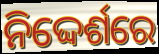
ନିଦ୍ଦେର୍ଶରେ